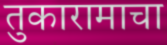
तुकारामाचा